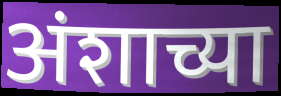
अंशाच्या